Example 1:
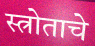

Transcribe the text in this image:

स्त्रोताचे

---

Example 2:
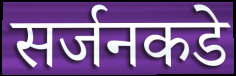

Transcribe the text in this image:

सर्जनकडे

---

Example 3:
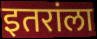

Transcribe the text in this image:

इतरांला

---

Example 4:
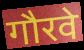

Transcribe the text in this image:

गौरवे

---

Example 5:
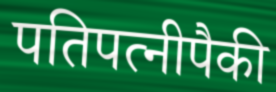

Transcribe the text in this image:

पतिपत्नीपैकी